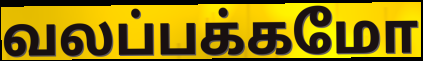
வலப்பக்கமோ